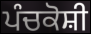
ਪੰਚਕੋਸ਼ੀ